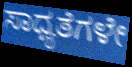
ಸಾಧ್ಯತೆಗಳೇ